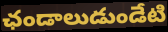
ఛండాలుడుండేటి